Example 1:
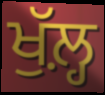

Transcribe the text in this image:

ਖੁੱਲ਼੍ਹ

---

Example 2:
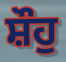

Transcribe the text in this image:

ਸ਼ੌਹੁ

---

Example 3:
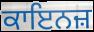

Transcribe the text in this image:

ਕਾਇਨਜ਼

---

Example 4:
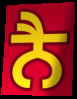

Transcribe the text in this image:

ਨੈ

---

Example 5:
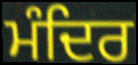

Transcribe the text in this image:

ਮੰਦਿਰ